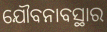
ଯୌବନାବସ୍ଥାର